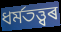
ধৰ্মতত্ত্বৰ